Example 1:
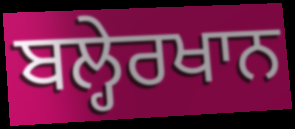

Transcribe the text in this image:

ਬਲ੍ਹੇਰਖਾਨ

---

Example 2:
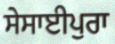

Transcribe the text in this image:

ਸੇਸਾਈਪੁਰਾ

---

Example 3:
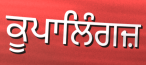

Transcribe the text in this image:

ਕੂਪਾਲਿੰਗਜ਼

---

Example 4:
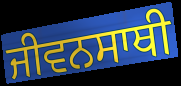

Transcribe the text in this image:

ਜੀਵਨਸਾਥੀ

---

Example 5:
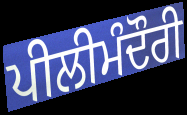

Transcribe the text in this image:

ਪੀਲੀਮੰਦੌਰੀ